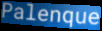
Palenque